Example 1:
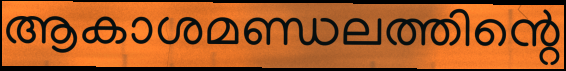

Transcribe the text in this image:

ആകാശമണ്ഡലത്തിന്റെ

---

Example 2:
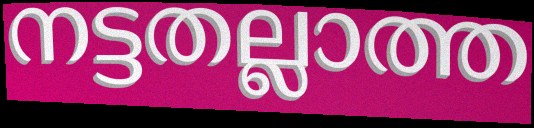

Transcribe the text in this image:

നട്ടതല്ലാത്ത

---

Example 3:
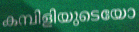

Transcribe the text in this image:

കമ്പിളിയുടെയോ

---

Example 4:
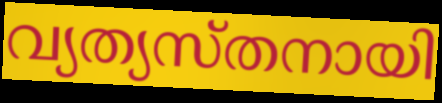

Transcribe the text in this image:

വ്യത്യസ്തനായി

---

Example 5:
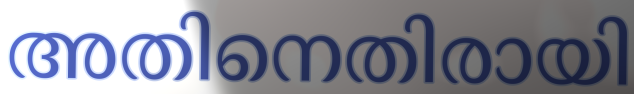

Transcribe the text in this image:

അതിനെതിരായി